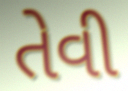
તેવી